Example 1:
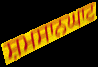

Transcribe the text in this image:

ਸ਼ਮਸਾਨਘਾਟ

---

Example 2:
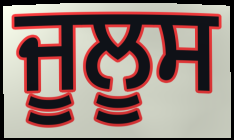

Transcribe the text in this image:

ਜੂਲੂਸ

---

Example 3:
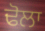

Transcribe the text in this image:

ਢੋਲਾ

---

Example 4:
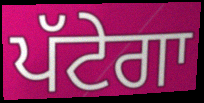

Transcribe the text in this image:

ਪੱਟੇਗਾ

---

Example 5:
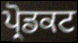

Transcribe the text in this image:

ਪ੍ਰੋਡਕਟ